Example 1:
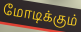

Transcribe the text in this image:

மோடிக்கும்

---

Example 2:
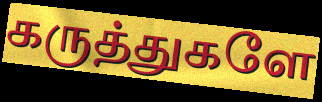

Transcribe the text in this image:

கருத்துகளே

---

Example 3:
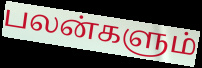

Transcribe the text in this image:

பலன்களும்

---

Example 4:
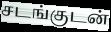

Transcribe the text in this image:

சடங்குடன்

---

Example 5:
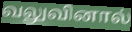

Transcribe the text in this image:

வலுவினால்